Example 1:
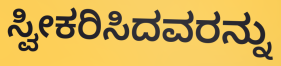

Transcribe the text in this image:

ಸ್ವೀಕರಿಸಿದವರನ್ನು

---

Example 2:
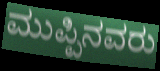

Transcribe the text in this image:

ಮುಪ್ಪಿನವರು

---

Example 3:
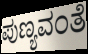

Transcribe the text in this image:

ಪುಣ್ಯವಂತೆ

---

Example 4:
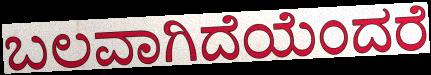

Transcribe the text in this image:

ಬಲವಾಗಿದೆಯೆಂದರೆ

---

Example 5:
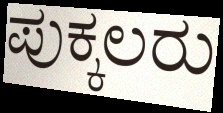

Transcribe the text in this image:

ಪುಕ್ಕಲರು